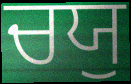
ਚਯੁ